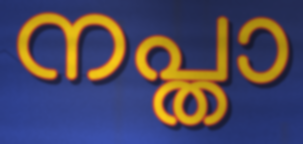
നപ്താ